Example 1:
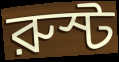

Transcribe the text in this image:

রুস্ট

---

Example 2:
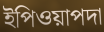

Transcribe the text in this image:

ইপিওয়াপদা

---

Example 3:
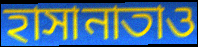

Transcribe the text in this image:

হাসানাতাও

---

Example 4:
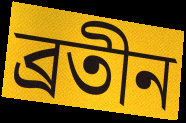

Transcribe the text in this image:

ব্রতীন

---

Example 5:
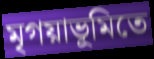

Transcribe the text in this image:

মৃগয়াভূমিতে